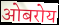
ओबरोय